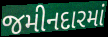
જમીનદારમાં